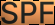
SPF